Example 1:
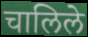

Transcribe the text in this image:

चालिले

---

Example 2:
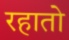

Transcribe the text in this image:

रहातो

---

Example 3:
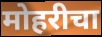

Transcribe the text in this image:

मोहरीचा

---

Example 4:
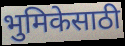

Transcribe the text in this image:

भुमिकेसाठी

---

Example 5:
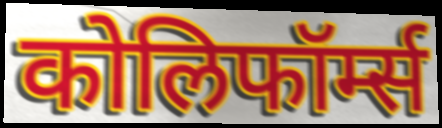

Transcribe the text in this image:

कोलिफॉर्म्स